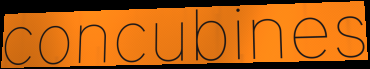
concubines